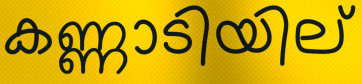
കണ്ണാടിയില്